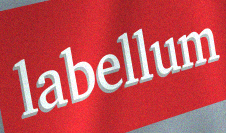
labellum